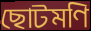
ছোটমণি